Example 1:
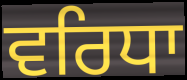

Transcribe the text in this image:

ਵਰਿਧਾ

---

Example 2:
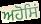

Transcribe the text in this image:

ਅਹੋਸਿਂ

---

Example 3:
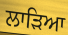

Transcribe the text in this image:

ਲਾੜਿਆ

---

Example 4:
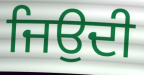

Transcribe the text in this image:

ਜਿਉਦੀ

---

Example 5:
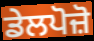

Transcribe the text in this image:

ਡੇਲਪੋਜ਼ੋ